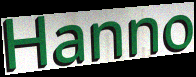
Hanno